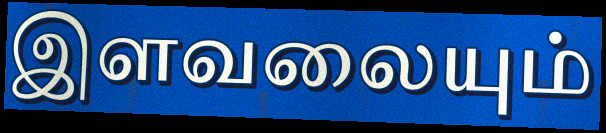
இளவலையும்